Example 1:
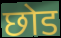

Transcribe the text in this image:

छोड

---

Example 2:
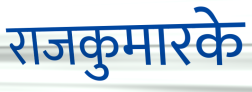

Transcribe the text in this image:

राजकुमारके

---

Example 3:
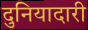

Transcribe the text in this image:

दुनियादारी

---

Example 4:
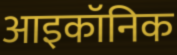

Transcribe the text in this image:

आइकॉनिक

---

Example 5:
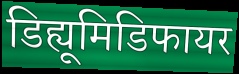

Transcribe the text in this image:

डिह्यूमिडिफायर